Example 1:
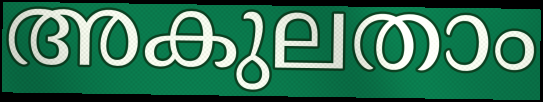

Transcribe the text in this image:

അകുലതാം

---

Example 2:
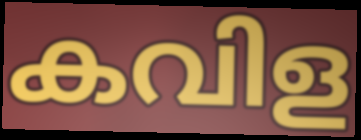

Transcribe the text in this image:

കവിള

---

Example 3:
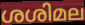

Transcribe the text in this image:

ശശിമല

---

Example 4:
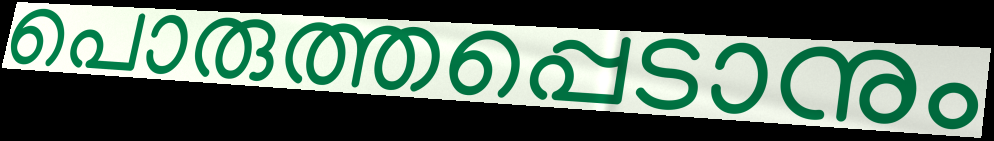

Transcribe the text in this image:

പൊരുത്തപ്പെടാനും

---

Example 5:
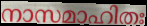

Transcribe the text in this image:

നാസമാഹിതഃ